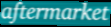
aftermarket